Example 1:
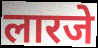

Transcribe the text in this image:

लारजे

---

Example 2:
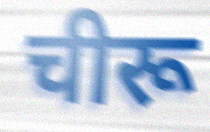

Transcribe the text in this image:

चीरू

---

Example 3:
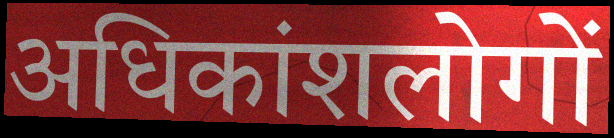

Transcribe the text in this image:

अधिकांशलोगों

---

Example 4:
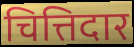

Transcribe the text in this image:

चित्तिदार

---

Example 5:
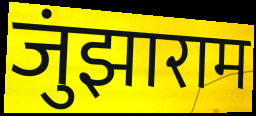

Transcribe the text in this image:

जुंझाराम